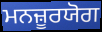
ਮਨਜ਼ੂਰਯੋਗ